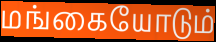
மங்கையோடும்